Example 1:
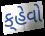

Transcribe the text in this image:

ક્‌હેવો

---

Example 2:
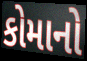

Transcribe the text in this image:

કોમાનો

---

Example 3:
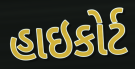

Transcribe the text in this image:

હાઇકોર્ટ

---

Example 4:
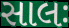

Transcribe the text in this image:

સાલઃ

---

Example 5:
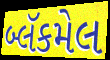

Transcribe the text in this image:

બ્લૅકમેલ